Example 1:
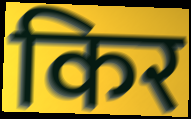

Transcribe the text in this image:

किर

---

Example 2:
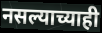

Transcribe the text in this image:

नसल्याच्याही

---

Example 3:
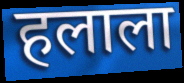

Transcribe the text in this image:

हलाला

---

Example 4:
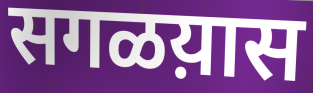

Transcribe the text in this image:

सगळय़ास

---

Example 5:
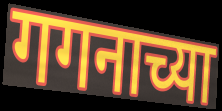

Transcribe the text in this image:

गगनाच्या